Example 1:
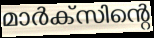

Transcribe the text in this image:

മാർക്‌സിന്റെ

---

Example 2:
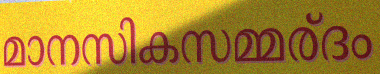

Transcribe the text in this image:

മാനസികസമ്മര്ദം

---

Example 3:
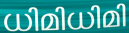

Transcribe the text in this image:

ധിമിധിമി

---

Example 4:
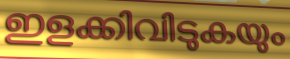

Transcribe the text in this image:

ഇളക്കിവിടുകയും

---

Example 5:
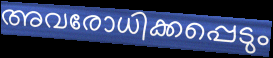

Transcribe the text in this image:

അവരോധിക്കപ്പെടും